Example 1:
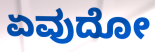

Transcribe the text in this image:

ಏವುದೋ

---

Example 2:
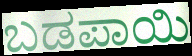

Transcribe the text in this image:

ಬಡಪಾಯಿ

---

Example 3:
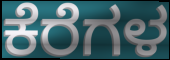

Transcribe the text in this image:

ಕೆರೆಗಳ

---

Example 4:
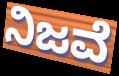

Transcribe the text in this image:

ನಿಜವೆ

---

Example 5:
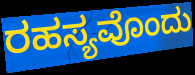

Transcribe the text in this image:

ರಹಸ್ಯವೊಂದು